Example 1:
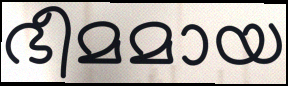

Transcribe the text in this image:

ഭീമമായ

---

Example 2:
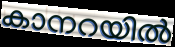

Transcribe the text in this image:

കാനറയിൽ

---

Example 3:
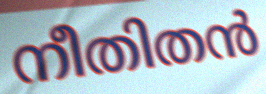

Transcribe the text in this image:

നീതിതൻ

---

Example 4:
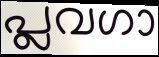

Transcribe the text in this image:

പ്ലവഗാ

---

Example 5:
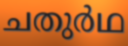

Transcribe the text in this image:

ചതുർഥ